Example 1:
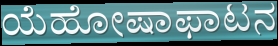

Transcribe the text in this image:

ಯೆಹೋಷಾಫಾಟನ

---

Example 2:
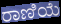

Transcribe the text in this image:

ರಾಣಿಯೆ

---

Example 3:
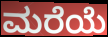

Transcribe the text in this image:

ಮರೆಯೆ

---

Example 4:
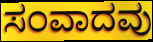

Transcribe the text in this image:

ಸಂವಾದವು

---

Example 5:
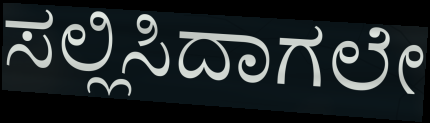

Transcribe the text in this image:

ಸಲ್ಲಿಸಿದಾಗಲೇ